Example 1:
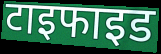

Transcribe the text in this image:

टाइफाइड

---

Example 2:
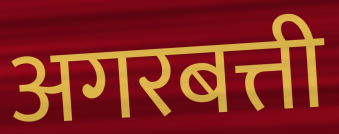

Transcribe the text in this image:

अगरबत्ती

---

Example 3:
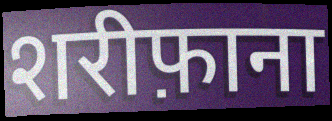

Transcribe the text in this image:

शरीफ़ाना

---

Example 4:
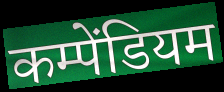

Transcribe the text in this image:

कम्पेंडियम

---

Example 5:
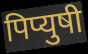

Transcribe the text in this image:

पिप्युषी